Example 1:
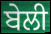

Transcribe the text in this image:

ਬੇਲੀ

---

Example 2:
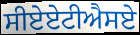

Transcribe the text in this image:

ਸੀਏਏਟੀਐਸਏ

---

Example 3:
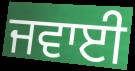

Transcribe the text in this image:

ਜਵਾਈ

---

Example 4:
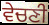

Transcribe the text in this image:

ਵੇਚਣੀ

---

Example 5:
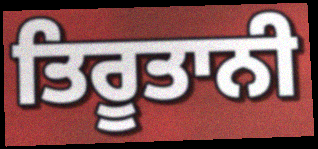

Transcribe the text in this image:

ਤਿਰੂਤਾਨੀ